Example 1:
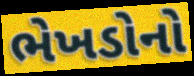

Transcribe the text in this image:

ભેખડોનો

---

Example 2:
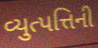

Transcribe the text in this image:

વ્યુત્પત્તિની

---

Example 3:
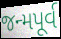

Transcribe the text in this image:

જન્મપૂર્વ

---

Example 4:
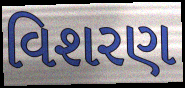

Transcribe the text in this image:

વિશરણ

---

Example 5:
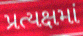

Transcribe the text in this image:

પ્રત્‍યક્ષમાં